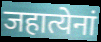
जहात्येनां